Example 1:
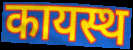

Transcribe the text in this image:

कायस्थ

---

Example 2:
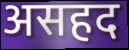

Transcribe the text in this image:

असहद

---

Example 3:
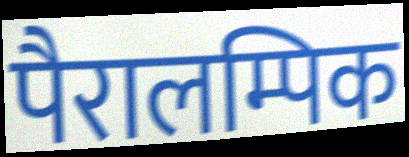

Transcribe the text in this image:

पैरालम्पिक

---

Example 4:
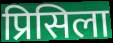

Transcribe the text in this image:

प्रिसिला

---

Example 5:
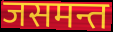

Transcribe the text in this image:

जसमन्त